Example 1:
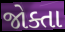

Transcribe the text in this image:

જોક્તા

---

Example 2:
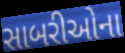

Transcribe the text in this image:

સાબરીઓના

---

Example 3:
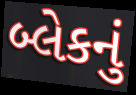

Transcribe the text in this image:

બ્લેકનું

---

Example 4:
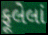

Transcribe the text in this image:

ફૂલેલાં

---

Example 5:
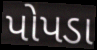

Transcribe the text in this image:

પોપડા